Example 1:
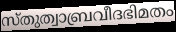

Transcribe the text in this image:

സ്തുത്വാബ്രവീദഭിമതം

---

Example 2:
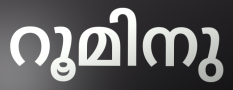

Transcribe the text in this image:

റൂമിനു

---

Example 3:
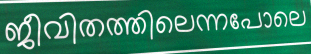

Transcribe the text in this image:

ജീവിതത്തിലെന്നപോലെ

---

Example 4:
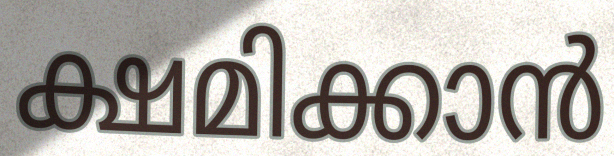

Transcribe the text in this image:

ക്ഷമിക്കാൻ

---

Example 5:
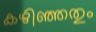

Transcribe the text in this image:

കഴിഞ്ഞതും